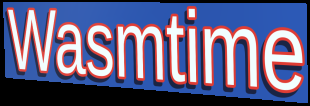
Wasmtime